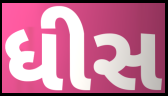
ધીસ